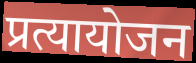
प्रत्यायोजन